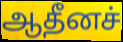
ஆதீனச்